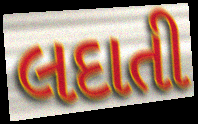
લદાતી